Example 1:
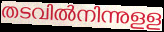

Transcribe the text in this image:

തടവിൽനിന്നുളള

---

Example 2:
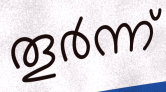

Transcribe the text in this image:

തൂർന്ന്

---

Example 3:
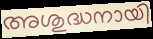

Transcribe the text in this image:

അശുദ്ധനായി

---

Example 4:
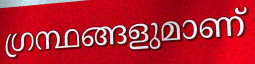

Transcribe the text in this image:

ഗ്രന്ഥങ്ങളുമാണ്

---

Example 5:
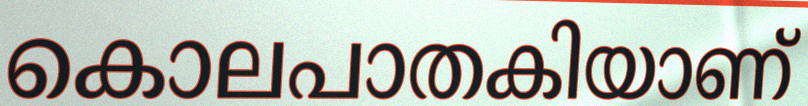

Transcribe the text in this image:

കൊലപാതകിയാണ്